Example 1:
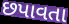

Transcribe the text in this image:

છપાવતા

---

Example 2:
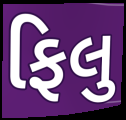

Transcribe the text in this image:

ફિલુ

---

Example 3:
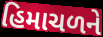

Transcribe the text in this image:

હિમાચળને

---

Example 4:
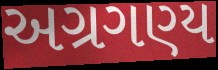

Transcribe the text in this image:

અગ્રગણ્ય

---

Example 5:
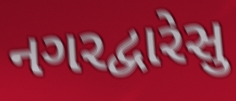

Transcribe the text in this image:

નગરદ્વારેસુ